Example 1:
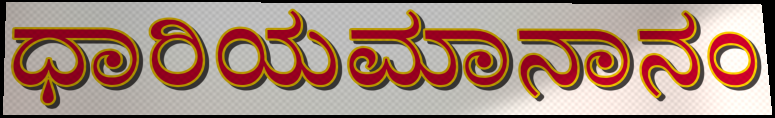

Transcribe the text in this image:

ಧಾರಿಯಮಾನಾನಂ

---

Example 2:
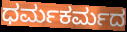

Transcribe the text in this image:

ಧರ್ಮಕರ್ಮದ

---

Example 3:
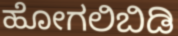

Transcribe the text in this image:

ಹೋಗಲಿಬಿಡಿ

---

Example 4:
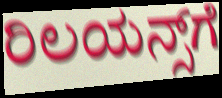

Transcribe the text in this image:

ರಿಲಯನ್ಸ್‌ಗೆ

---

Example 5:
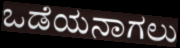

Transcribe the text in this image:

ಒಡೆಯನಾಗಲು